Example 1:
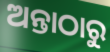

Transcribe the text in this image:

ଅନ୍ତାଠାରୁ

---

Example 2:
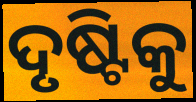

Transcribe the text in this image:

ଦୃଷ୍ଟିକୁ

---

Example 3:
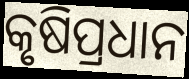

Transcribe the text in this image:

କୃଷିପ୍ରଧାନ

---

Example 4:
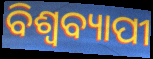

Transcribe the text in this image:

ବିଶ୍ଵବ୍ୟାପୀ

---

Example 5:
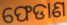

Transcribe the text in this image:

ଫେଡାଣ